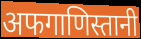
अफगाणिस्तानी